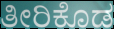
ತೀರಿಕೊಡ